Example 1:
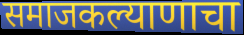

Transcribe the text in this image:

समाजकल्याणाचा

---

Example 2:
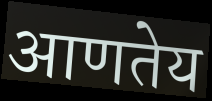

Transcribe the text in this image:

आणतेय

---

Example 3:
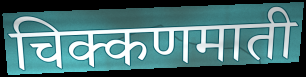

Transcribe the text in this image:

चिक्कणमाती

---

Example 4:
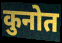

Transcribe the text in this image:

कुनोत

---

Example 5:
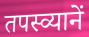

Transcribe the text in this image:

तपस्व्यानें